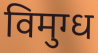
विमुग्ध